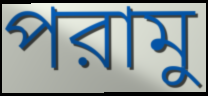
পরামু